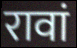
रावां